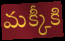
మక్కీకి